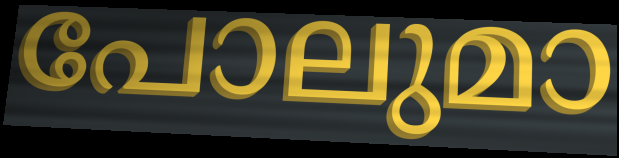
പോലുമാ